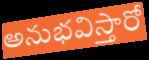
అనుభవిస్తారో